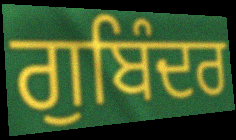
ਗੁਬਿੰਦਰ